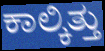
ಕಾಲ್ಕಿತ್ತು